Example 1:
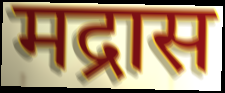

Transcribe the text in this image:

मद्रास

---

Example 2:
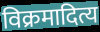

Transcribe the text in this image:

विक्रमादित्य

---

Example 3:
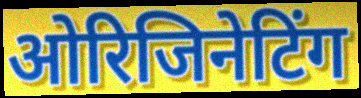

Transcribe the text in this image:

ओरिजिनेटिंग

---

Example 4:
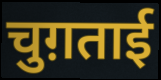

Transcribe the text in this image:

चुग़ताई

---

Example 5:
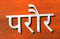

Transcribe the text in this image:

परौर